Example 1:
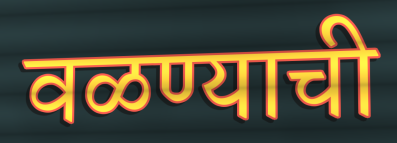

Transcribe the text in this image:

वळण्याची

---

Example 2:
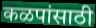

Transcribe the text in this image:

कळपांसाठी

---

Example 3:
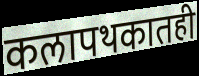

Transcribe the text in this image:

कलापथकातही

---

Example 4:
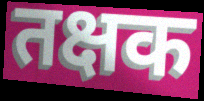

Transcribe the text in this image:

तक्षक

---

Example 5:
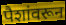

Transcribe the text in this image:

पैशांवरून